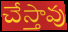
చేస్తావు